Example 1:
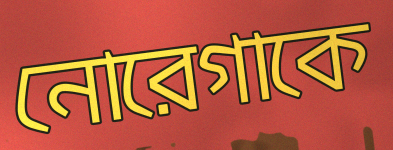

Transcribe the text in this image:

নোরেগাকে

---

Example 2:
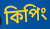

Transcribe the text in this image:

কিপিং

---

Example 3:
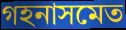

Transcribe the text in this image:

গহনাসমেত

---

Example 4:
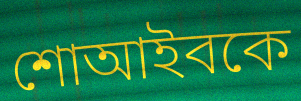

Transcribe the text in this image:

শোআইবকে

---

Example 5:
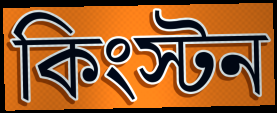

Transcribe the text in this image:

কিংস্টন